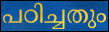
പഠിച്ചതും